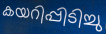
കയറിപ്പിടിച്ചു